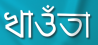
খাওঁতা